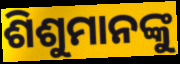
ଶିଶୁମାନଙ୍କୁ